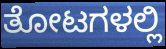
ತೋಟಗಳಲ್ಲಿ